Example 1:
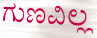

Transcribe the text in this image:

ಗುಣವಿಲ್ಲ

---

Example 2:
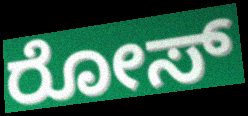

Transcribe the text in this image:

ರೋಸ್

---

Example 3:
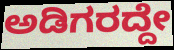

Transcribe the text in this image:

ಅಡಿಗರದ್ದೇ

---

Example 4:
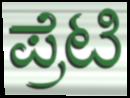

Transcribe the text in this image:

ಪ್ರೆಟಿ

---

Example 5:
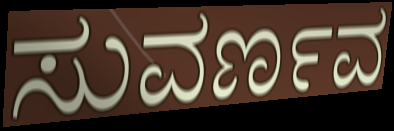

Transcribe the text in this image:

ಸುವರ್ಣವ